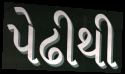
પેઢીથી